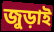
জুড়াই